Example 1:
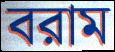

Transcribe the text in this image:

বরাম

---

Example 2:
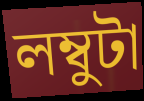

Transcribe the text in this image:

লম্বুটা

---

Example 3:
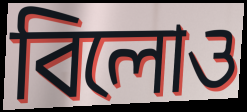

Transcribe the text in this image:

বিলোও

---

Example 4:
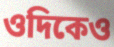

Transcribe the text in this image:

ওদিকেও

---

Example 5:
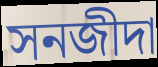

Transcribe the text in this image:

সনজীদা